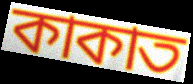
কাকাত